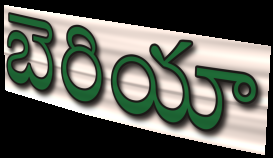
బెరియా